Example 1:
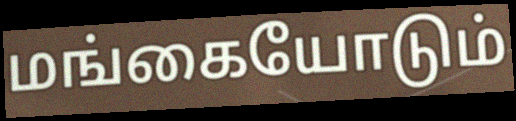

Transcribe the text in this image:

மங்கையோடும்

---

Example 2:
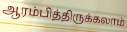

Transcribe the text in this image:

ஆரம்பித்திருக்கலாம்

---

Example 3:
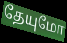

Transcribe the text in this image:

தேயுமோ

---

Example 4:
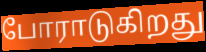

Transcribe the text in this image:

போராடுகிறது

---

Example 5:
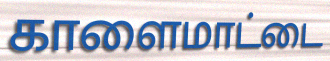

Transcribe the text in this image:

காளைமாட்டை